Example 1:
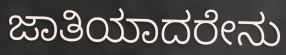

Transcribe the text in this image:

ಜಾತಿಯಾದರೇನು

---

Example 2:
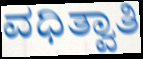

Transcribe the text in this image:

ವಧಿತ್ವಾತಿ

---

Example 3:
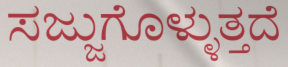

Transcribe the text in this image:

ಸಜ್ಜುಗೊಳ್ಳುತ್ತದೆ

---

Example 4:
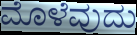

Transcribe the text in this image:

ಮೊಳೆವುದು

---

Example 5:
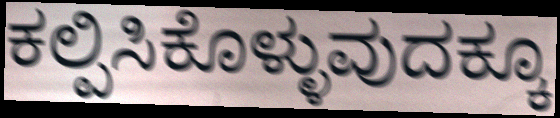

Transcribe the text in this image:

ಕಲ್ಪಿಸಿಕೊಳ್ಳುವುದಕ್ಕೂ